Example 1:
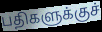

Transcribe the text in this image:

பதிகளுக்குச்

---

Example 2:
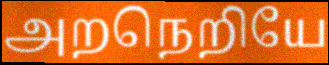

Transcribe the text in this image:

அறநெறியே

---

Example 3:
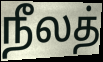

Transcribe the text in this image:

நீலத்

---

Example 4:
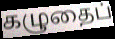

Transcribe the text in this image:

கழுதைப்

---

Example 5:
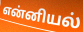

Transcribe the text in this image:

என்னியல்